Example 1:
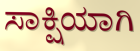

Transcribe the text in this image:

ಸಾಕ್ಷಿಯಾಗಿ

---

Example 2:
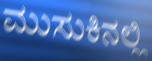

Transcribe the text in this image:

ಮುಸುಕಿನಲ್ಲಿ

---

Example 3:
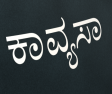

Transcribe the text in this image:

ಕಾವ್ಯಸಾ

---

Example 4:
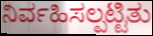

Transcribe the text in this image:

ನಿರ್ವಹಿಸಲ್ಪಟ್ಟಿತು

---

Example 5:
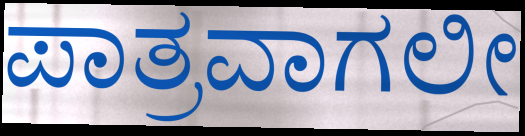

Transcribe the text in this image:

ಪಾತ್ರವಾಗಲೀ